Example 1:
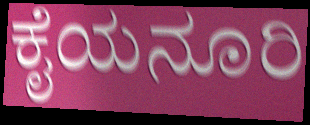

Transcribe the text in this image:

ಕೈಯನೂರಿ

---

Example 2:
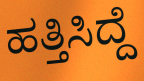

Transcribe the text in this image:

ಹತ್ತಿಸಿದ್ದೆ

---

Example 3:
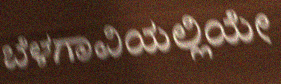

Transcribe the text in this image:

ಬೆಳಗಾವಿಯಲ್ಲಿಯೇ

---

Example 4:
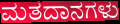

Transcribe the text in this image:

ಮತದಾನಗಳು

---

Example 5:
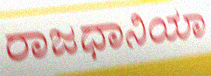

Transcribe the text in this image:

ರಾಜಧಾನಿಯಾ